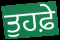
ਤੁਹਫ਼ੇ